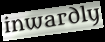
inwardly